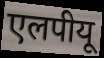
एलपीयू